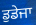
ਡੁਡੇਜਾ